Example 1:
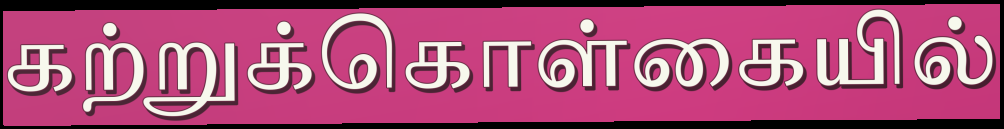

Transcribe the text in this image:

கற்றுக்கொள்கையில்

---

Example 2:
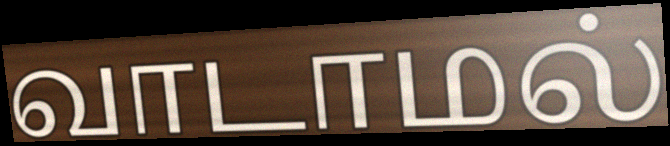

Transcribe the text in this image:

வாடாமல்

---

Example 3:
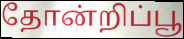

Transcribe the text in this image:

தோன்றிப்பூ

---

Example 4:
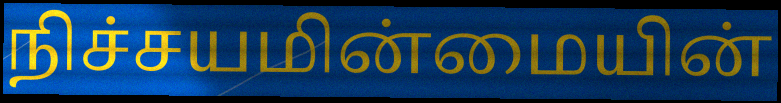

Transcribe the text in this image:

நிச்சயமின்மையின்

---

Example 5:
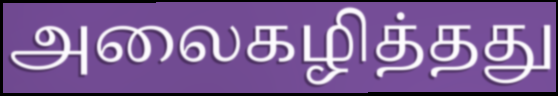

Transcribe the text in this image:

அலைகழித்தது